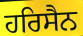
ਹਰਿਸੈਨ